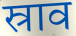
स्राव